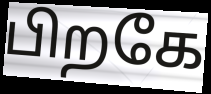
பிறகே